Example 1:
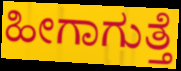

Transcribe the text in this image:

ಹೀಗಾಗುತ್ತೆ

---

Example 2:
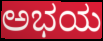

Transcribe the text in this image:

ಅಭಯ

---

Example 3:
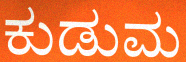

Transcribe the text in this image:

ಕುಡುಮ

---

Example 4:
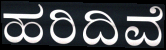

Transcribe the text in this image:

ಹರಿದಿವೆ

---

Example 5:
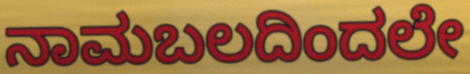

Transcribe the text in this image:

ನಾಮಬಲದಿಂದಲೇ